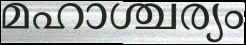
മഹാശ്ചര്യം